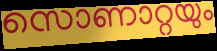
സൊണാറ്റയും